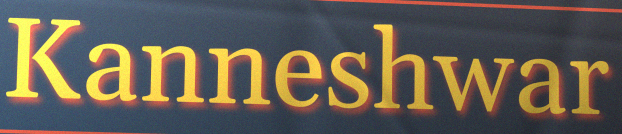
Kanneshwar